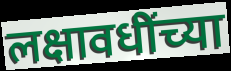
लक्षावधींच्या